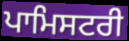
ਪਾਮਿਸਟਰੀ